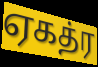
ஏகத்ர